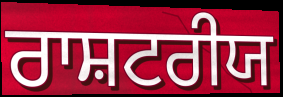
ਰਾਸ਼ਟਰੀਯ